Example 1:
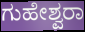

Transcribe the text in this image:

ಗುಹೇಶ್ವರಾ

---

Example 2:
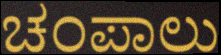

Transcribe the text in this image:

ಚಂಪಾಲು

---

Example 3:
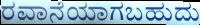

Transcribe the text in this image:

ರವಾನೆಯಾಗಬಹುದು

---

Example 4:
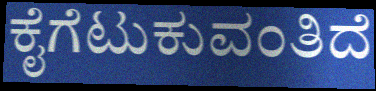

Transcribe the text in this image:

ಕೈಗೆಟುಕುವಂತಿದೆ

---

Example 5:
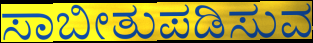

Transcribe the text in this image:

ಸಾಬೀತುಪಡಿಸುವ